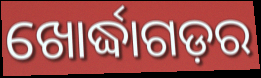
ଖୋର୍ଦ୍ଧାଗଡ଼ର